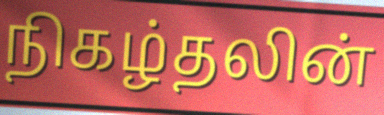
நிகழ்தலின்